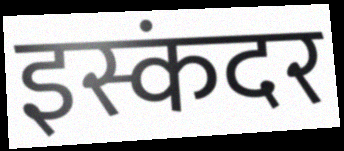
इस्कंदर